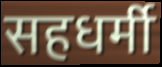
सहधर्मी